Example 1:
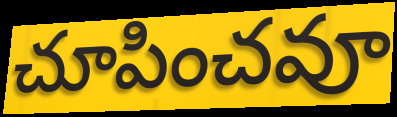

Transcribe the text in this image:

చూపించవూ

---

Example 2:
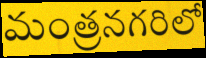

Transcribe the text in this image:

మంత్రనగరిలో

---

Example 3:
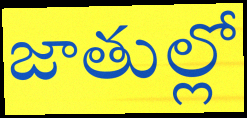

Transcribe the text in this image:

జాతుల్లో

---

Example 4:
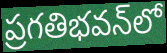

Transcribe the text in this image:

ప్రగతిభవన్‌లో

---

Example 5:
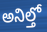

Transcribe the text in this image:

అనిల్తో